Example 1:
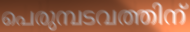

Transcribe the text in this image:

പെരുമ്പടവത്തിന്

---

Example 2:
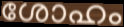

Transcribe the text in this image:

ശോഹം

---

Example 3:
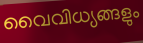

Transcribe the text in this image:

വൈവിധ്യങ്ങളും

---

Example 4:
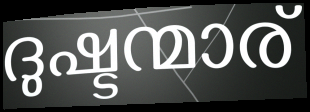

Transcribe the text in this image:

ദുഷ്ടന്മാര്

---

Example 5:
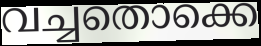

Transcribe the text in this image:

വച്ചതൊക്കെ